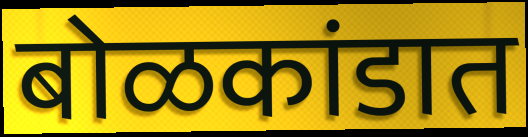
बोळकांडात